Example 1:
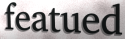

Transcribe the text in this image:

featued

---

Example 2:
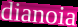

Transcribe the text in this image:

dianoia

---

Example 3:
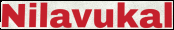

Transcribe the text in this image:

Nilavukal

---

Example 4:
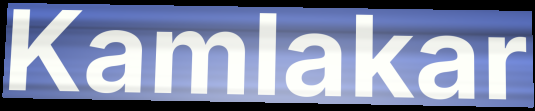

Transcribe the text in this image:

Kamlakar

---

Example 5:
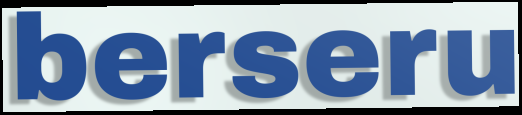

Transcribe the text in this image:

berseru